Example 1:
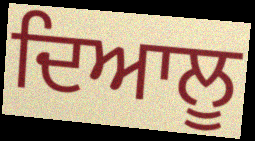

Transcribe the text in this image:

ਦਿਆਲੂ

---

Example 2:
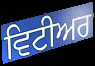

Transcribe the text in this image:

ਵਿਟੀਅਰ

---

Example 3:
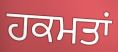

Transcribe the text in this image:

ਹਕਮਤਾਂ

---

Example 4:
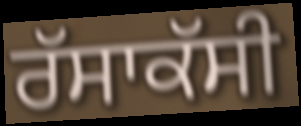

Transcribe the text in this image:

ਰੱਸਾਕੱਸੀ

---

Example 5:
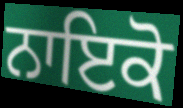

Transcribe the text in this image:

ਨਾਇਕੋ